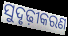
ସୁଦୃଢ଼ୀକରଣ